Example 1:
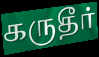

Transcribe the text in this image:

கருதீர்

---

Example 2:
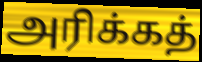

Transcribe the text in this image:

அரிக்கத்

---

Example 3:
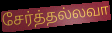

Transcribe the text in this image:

சேர்த்தல்லவா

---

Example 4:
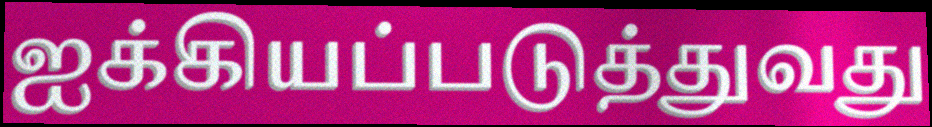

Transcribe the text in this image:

ஐக்கியப்படுத்துவது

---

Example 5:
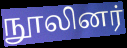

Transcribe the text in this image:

நூலினர்